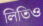
লিতিও